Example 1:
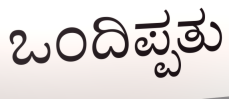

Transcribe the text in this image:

ಒಂದಿಪ್ಪತು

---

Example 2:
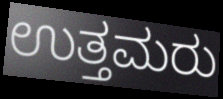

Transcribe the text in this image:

ಉತ್ತಮರು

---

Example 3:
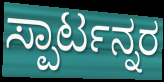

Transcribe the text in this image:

ಸ್ಪಾರ್ಟನ್ನರ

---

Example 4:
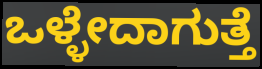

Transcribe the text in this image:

ಒಳ್ಳೇದಾಗುತ್ತೆ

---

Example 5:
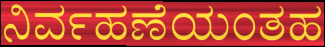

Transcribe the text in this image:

ನಿರ್ವಹಣೆಯಂತಹ